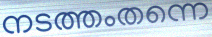
നടത്തംതന്നെ